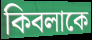
কিবলাকে